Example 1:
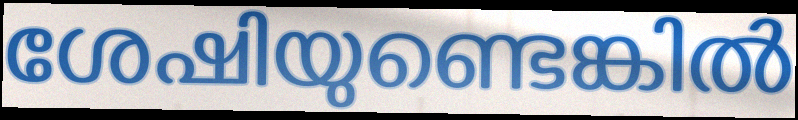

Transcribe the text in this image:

ശേഷിയുണ്ടെങ്കിൽ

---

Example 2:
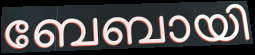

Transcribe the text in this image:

ബേബായി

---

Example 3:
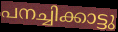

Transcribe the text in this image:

പനച്ചിക്കാട്ടു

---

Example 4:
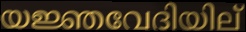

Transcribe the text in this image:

യജ്ഞവേദിയില്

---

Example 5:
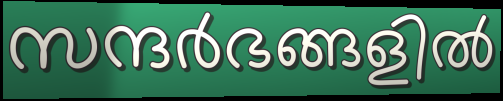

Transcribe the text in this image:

സന്ദർഭങ്ങളിൽ